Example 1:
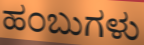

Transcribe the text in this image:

ಹಂಬುಗಳು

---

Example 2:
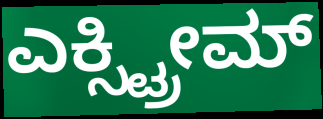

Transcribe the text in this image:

ಎಕ್ಸ್ಟ್ರೀಮ್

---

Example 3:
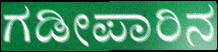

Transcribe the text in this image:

ಗಡೀಪಾರಿನ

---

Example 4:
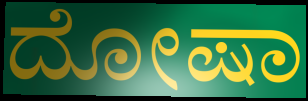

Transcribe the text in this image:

ದೋಷಾ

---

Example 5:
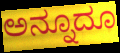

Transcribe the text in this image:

ಅನ್ನೂದೂ